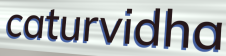
caturvidha